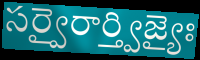
సర్వైరార్త్విజ్యైః